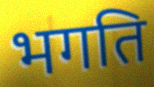
भगति